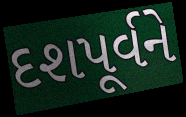
દશપૂર્વને